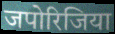
जपोरिजिया